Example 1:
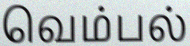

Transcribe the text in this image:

வெம்பல்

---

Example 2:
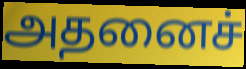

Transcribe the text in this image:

அதனைச்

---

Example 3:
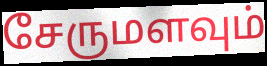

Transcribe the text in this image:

சேருமளவும்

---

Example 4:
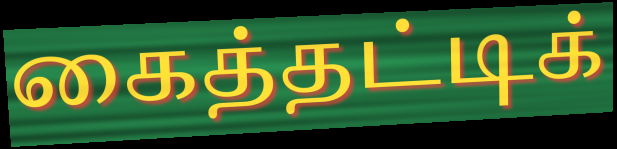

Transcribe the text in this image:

கைத்தட்டிக்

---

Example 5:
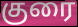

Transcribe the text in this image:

குரை